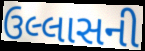
ઉલ્લાસની